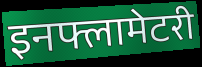
इनफ्लामेटरी